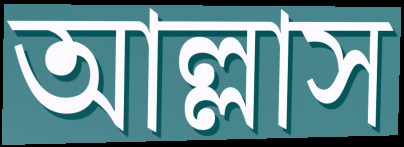
আল্লাস